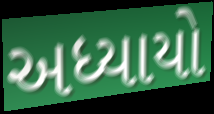
અધ્યાયો